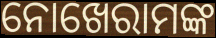
ନୋଖେରାମଙ୍କ